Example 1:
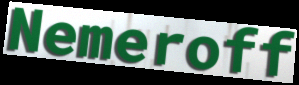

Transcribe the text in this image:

Nemeroff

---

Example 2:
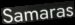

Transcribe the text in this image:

Samaras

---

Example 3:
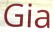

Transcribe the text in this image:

Gia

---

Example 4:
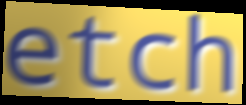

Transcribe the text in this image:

etch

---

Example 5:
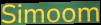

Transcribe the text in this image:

Simoom